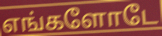
எங்களோடே